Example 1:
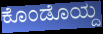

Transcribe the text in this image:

ಕೊಂಡೊಯ್ದ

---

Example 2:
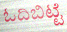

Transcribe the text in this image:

ಓದಿಬಿಟ್ಟೆ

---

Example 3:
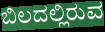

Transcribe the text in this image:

ಬಿಲದಲ್ಲಿರುವ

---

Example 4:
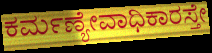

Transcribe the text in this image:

ಕರ್ಮಣ್ಯೇವಾಧಿಕಾರಸ್ತೇ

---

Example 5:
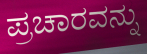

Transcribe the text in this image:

ಪ್ರಚಾರವನ್ನು